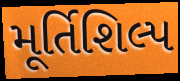
મૂર્તિશિલ્પ